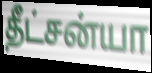
தீட்சன்யா